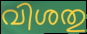
വിശതു